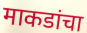
माकडांचा